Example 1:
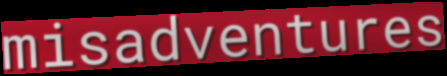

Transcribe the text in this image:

misadventures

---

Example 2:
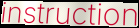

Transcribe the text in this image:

instruction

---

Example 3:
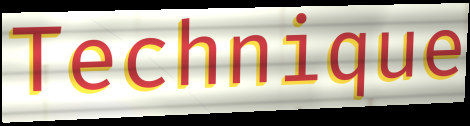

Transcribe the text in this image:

Technique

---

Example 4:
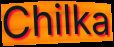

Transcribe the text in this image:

Chilka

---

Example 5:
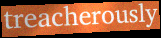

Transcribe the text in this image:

treacherously